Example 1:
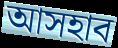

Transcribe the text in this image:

আসহাব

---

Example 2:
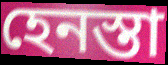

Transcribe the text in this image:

হেনস্তা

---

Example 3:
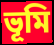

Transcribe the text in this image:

ভূমি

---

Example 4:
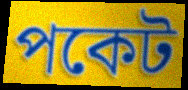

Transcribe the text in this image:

পকেট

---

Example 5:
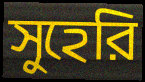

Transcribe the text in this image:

সুহেরি